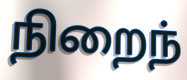
நிறைந்